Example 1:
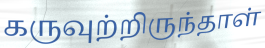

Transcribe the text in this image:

கருவுற்றிருந்தாள்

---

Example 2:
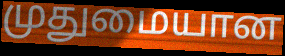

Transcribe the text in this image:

முதுமையான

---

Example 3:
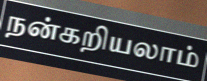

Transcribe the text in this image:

நன்கறியலாம்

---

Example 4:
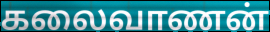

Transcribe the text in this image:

கலைவாணன்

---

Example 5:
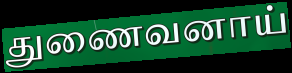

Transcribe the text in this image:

துணைவனாய்